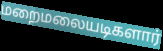
மறைமலையடிகளார்